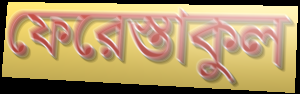
ফেরেস্তাকুল